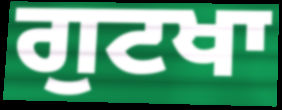
ਗੁਟਖਾ